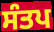
ਸੰਤਪ